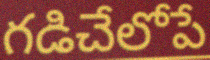
గడిచేలోపే